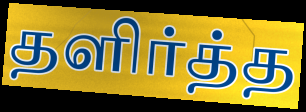
தளிர்த்த